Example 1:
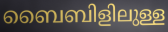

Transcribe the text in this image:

ബൈബിളിലുള്ള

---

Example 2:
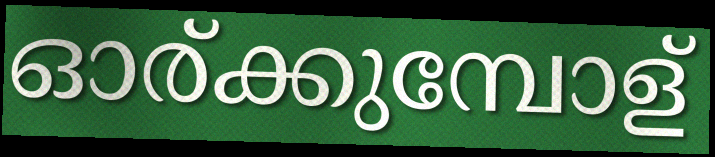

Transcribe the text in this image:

ഓര്ക്കുമ്പോള്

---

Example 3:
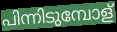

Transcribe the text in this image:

പിന്നിടുമ്പോള്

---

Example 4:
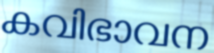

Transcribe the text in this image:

കവിഭാവന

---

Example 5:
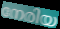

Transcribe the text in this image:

നേരിയ